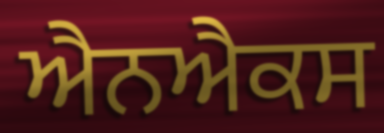
ਐਨਐਕਸ